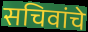
सचिवांचे